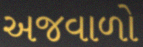
અજવાળો